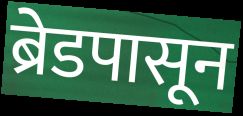
ब्रेडपासून